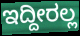
ಇದ್ದೀರಲ್ಲ